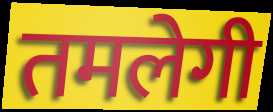
तमलेगी